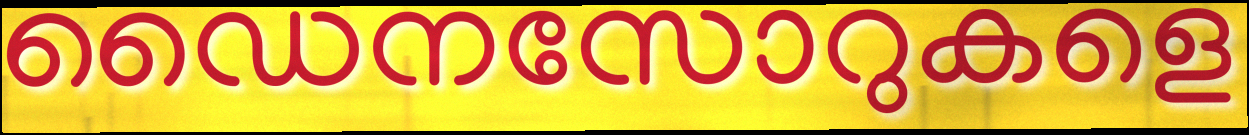
ഡൈനസോറുകളെ